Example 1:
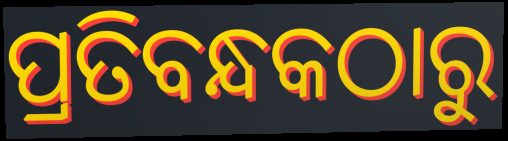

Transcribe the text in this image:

ପ୍ରତିବନ୍ଧକଠାରୁ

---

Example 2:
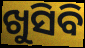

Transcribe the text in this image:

ଖୁସିବି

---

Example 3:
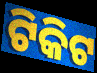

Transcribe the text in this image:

ଟିକିଟ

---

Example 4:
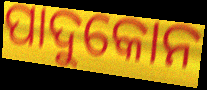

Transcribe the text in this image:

ପାଦୁକୋନ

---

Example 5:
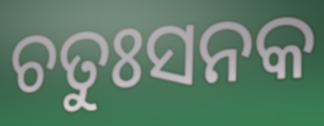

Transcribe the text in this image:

ଚତୁଃସନକ